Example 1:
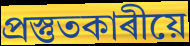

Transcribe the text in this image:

প্ৰস্তুতকাৰীয়ে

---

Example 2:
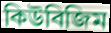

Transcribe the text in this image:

কিউবিজিম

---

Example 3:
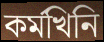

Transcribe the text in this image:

কৰ্মখিনি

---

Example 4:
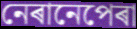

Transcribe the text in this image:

নেৰানেপেৰা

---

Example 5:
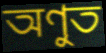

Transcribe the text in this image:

অণুত